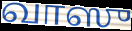
வாஸு